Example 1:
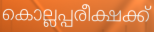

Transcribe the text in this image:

കൊല്ലപ്പരീക്ഷക്ക്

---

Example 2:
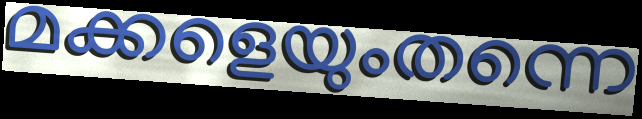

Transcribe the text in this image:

മക്കളെയുംതന്നെ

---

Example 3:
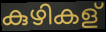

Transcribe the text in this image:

കുഴികള്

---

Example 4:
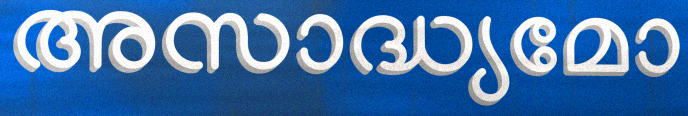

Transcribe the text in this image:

അസാദ്ധ്യമോ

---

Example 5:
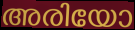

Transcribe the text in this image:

അരിയോ